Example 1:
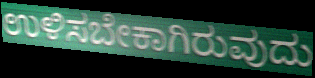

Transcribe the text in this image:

ಉಳಿಸಬೇಕಾಗಿರುವುದು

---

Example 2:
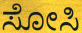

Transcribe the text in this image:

ಸೋಸಿ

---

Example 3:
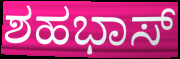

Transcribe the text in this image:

ಶಹಭಾಸ್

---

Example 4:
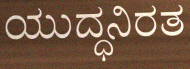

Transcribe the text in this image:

ಯುದ್ಧನಿರತ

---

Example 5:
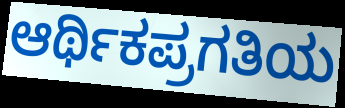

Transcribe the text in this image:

ಆರ್ಥಿಕಪ್ರಗತಿಯ